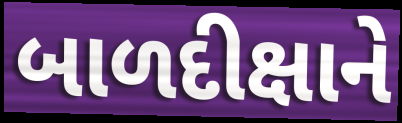
બાળદીક્ષાને